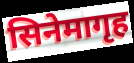
सिनेमागृह